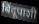
बिंदूपाशी